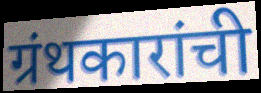
ग्रंथकारांची